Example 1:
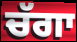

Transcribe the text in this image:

ਚੱਗਾ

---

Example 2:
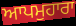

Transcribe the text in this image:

ਆਪਮੁਹਾਰਾ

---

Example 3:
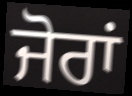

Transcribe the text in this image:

ਜੋਰਾਂ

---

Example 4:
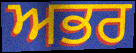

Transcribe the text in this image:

ਅਭਰ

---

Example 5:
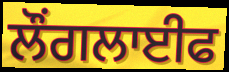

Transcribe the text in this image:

ਲੌਂਗਲਾਈਫ